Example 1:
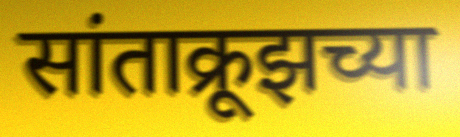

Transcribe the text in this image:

सांताक्रूझच्या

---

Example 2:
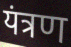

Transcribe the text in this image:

यंत्रण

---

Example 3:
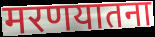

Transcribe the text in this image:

मरणयातना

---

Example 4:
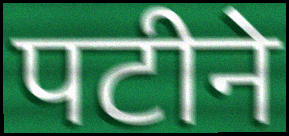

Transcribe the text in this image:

पटीने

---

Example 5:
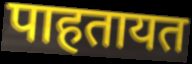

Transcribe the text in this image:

पाहतायत